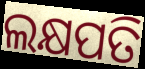
ଲକ୍ଷପତି